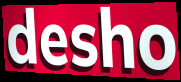
desho